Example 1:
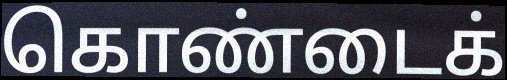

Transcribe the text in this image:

கொண்டைக்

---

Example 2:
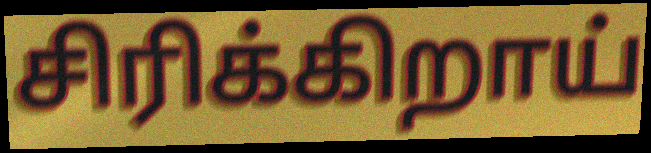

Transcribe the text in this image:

சிரிக்கிறாய்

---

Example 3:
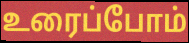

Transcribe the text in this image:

உரைப்போம்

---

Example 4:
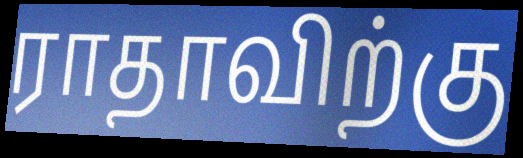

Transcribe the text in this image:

ராதாவிற்கு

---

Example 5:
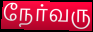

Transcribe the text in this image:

நேர்வரு